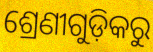
ଶ୍ରେଣୀଗୁଡ଼ିକରୁ